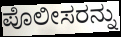
ಪೊಲೀಸರನ್ನು